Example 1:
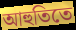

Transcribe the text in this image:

আহুতিতে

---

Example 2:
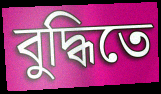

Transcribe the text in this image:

বুদ্ধিতে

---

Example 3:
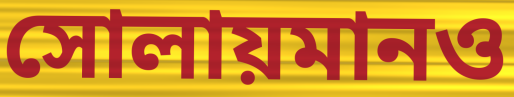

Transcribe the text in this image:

সোলায়মানও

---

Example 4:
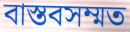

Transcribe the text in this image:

বাস্তবসম্মত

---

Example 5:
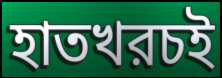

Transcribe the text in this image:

হাতখরচই